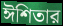
ঈশিতার